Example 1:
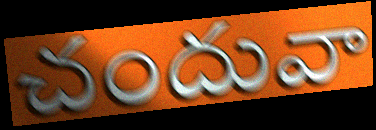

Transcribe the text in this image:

చందువా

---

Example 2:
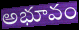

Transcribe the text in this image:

అభూవం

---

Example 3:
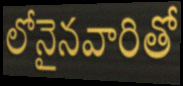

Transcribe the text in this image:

లోనైనవారితో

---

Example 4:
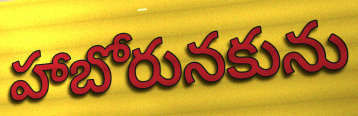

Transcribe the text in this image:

హాబోరునకును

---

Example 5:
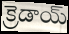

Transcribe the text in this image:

క్రెడాయ్